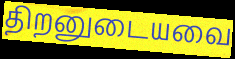
திறனுடையவை